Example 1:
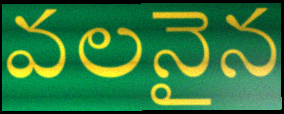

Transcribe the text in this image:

వలనైన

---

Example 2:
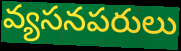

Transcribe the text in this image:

వ్యసనపరులు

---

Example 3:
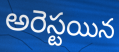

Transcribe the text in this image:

అరెస్టయిన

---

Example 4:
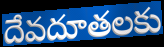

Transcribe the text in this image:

దేవదూతలకు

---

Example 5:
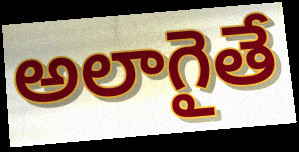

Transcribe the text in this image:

అలాగైతే